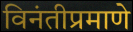
विनंतीप्रमाणे